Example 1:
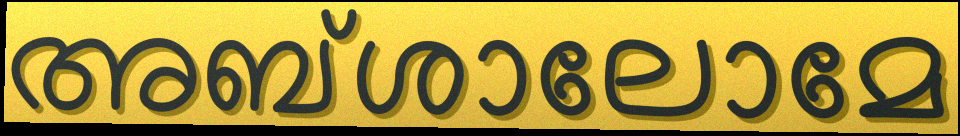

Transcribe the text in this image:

അബ്ശാലോമേ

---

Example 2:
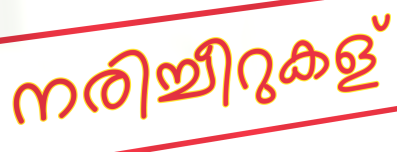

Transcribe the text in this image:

നരിച്ചീറുകള്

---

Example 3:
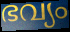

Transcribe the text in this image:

ഭവ്യം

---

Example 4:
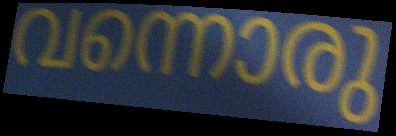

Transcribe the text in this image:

വന്നൊരു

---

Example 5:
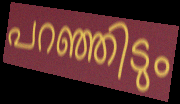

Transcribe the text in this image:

പറഞ്ഞിടും